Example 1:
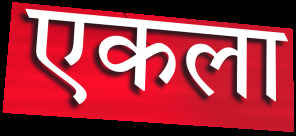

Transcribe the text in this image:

एकला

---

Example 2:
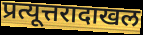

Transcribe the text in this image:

प्रत्यूत्तरादाखल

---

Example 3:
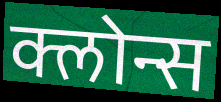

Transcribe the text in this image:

क्लोन्स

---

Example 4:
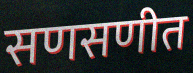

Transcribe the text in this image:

सणसणीत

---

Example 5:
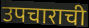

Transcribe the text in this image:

उपचाराची